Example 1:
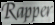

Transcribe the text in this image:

Rapper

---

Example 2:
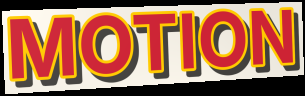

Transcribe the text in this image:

MOTION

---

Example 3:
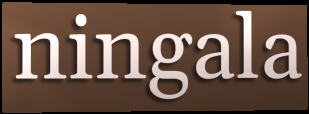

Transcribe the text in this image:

ningala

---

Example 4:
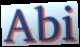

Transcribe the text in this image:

Abi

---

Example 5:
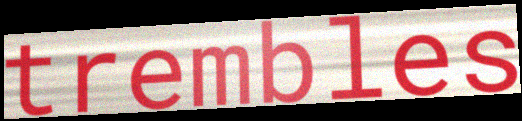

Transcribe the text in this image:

trembles